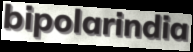
bipolarindia